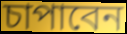
চাপাবেন